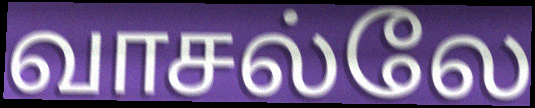
வாசல்லே